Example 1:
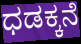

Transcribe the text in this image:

ಧಡಕ್ಕನೆ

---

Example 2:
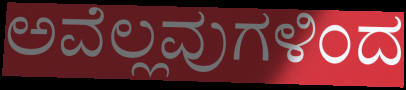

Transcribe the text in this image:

ಅವೆಲ್ಲವುಗಳಿಂದ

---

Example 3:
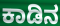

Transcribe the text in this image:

ಕಾಡಿನ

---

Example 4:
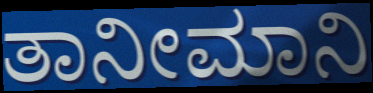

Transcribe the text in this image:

ತಾನೀಮಾನಿ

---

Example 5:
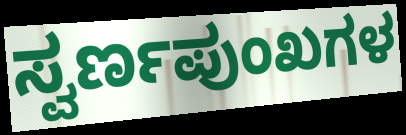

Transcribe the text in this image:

ಸ್ವರ್ಣಪುಂಖಗಳ